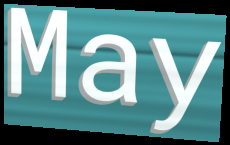
May